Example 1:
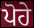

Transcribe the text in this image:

ਪੋਹੇ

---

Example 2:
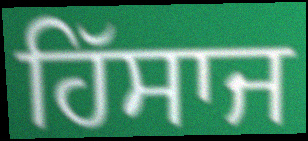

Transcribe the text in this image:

ਹਿੱਸਾਜ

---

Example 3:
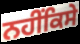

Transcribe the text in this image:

ਨਹੀਂਕਿਸੇ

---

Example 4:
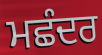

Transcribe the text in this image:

ਮਛੰਦਰ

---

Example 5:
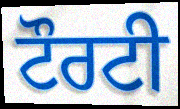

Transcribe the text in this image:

ਟੌਰਟੀ